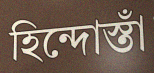
হিন্দোস্তাঁ